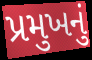
પ્રમુખનું